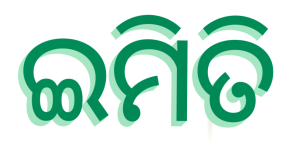
ଇମିତି